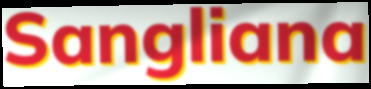
Sangliana